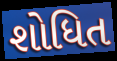
શોધિત